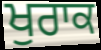
ਖੁਰਾਕ